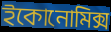
ইকোনোমিক্স